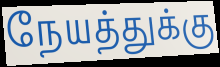
நேயத்துக்கு